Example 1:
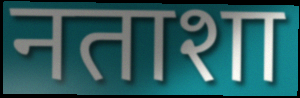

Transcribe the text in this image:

नताशा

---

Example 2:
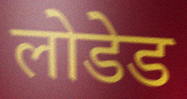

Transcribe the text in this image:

लोडेड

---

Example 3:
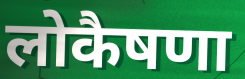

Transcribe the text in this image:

लोकैषणा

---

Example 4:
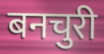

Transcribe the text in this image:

बनचुरी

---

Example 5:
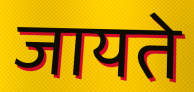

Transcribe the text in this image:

जायते